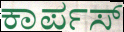
ಕಾರ್ಪಸ್